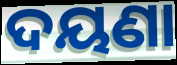
ଦୟଣା